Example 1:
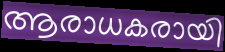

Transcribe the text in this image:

ആരാധകരായി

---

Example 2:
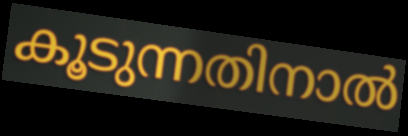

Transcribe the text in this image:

കൂടുന്നതിനാൽ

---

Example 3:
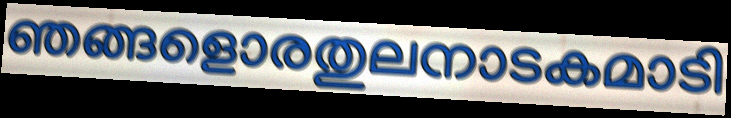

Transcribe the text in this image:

ഞങ്ങളൊരതുലനാടകമാടി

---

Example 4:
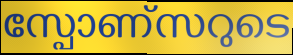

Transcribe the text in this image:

സ്പോണ്സറുടെ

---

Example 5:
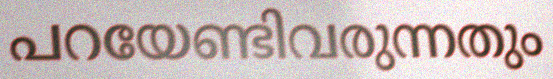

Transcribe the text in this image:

പറയേണ്ടിവരുന്നതും